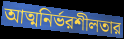
আত্মনির্ভরশীলতার